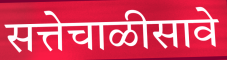
सत्तेचाळीसावे